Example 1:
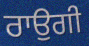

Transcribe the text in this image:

ਰਾਉਗੀ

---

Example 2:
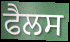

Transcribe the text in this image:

ਫੈਲਸ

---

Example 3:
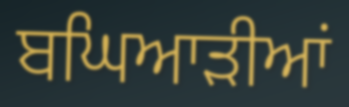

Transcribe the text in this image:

ਬਘਿਆੜੀਆਂ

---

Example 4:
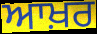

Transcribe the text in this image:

ਆਖ਼ਰ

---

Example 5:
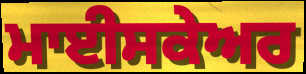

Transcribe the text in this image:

ਮਾਈਸਕੇਅਰ